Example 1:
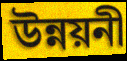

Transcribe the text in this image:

উন্নয়নী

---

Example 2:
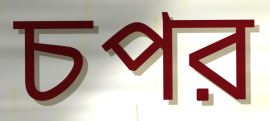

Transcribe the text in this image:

চপর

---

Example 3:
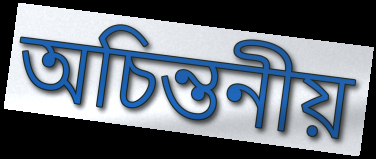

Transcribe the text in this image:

অচিন্তনীয়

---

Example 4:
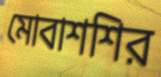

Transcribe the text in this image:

মোবাশশির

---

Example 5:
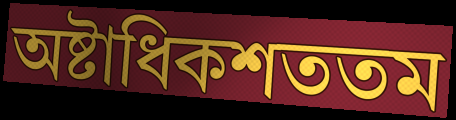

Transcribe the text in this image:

অষ্টাধিকশততম